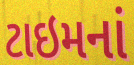
ટાઇમનાં